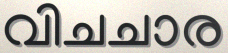
വിചചാര